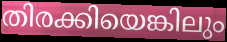
തിരക്കിയെങ്കിലും